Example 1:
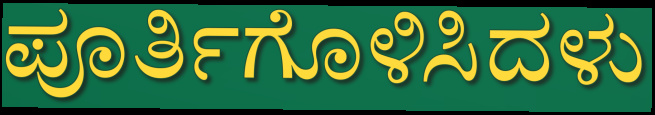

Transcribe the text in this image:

ಪೂರ್ತಿಗೊಳಿಸಿದಳು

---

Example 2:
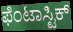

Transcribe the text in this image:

ಫೆಂಟಾಸ್ಟಿಕ್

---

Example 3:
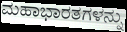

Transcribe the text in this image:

ಮಹಾಭಾರತಗಳನ್ನು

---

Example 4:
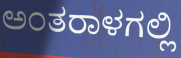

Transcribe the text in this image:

ಅಂತರಾಳಗಲ್ಲಿ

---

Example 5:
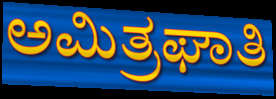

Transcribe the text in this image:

ಅಮಿತ್ರಘಾತಿ